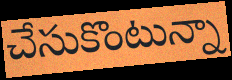
చేసుకొంటున్నా